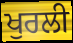
ਖੁਰਲੀ